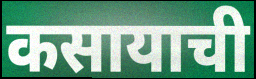
कसायाची